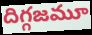
దిగ్గజమూ